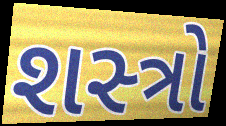
શસ્‍ત્રો